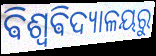
ଵିଶ୍ୱଵିଦ୍ୟାଳୟରୁ